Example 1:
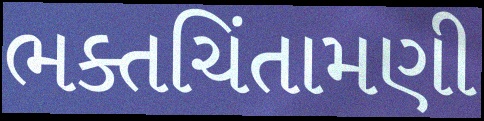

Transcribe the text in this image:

ભક્તચિંતામણી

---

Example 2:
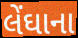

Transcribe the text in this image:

લેંઘાના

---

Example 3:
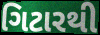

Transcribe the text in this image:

ગિટારથી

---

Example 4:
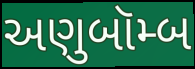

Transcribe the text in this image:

અણુબૉમ્બ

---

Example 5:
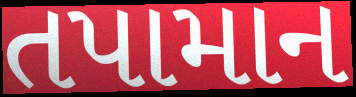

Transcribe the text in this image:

તપામાન